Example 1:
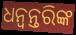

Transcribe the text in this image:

ଧନ୍ୱନ୍ତରିଙ୍କ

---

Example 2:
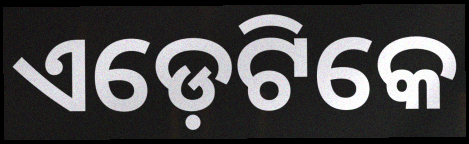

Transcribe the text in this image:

ଏଡ଼େଟିକେ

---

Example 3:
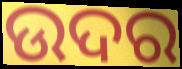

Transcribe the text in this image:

ଉଦର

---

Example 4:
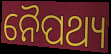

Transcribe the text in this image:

ନୈପଥ୍ୟ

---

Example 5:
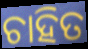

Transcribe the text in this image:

ଚାହିତ